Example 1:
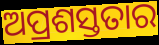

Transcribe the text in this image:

ଅପ୍ରଶସ୍ତତାର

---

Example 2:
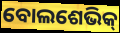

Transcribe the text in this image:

ବୋଲଶେଭିକ୍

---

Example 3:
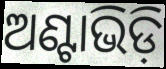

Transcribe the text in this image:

ଅଣ୍ଟାଭିଡ଼ି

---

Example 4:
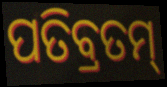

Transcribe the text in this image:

ପତିବ୍ରତମ୍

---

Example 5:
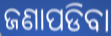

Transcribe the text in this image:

ଜଣାପଡିବା